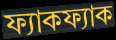
ফ্যাকফ্যাক